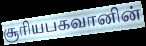
சூரியபகவானின்